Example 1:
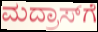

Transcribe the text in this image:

ಮದ್ರಾಸ್‍ಗೆ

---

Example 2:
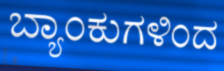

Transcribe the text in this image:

ಬ್ಯಾಂಕುಗಳಿಂದ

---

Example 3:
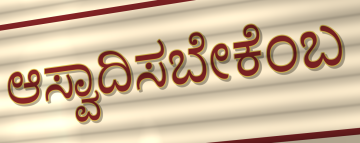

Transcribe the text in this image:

ಆಸ್ವಾದಿಸಬೇಕೆಂಬ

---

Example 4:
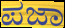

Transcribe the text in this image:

ಪಜಾ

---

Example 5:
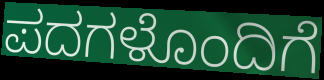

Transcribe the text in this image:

ಪದಗಳೊಂದಿಗೆ